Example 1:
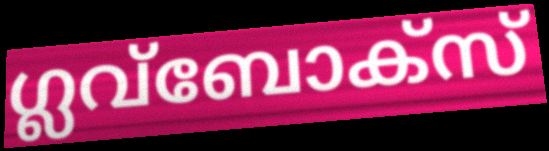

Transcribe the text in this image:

ഗ്ലവ്ബോക്സ്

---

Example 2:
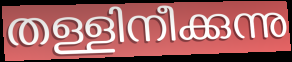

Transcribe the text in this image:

തള്ളിനീക്കുന്നു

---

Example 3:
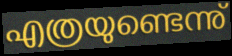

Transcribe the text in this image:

എത്രയുണ്ടെന്നു്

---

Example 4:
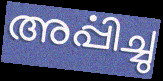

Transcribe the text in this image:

അൎപ്പിച്ചു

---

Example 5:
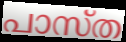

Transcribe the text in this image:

പാസ്ത